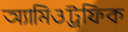
অ্যামিওট্রফিক